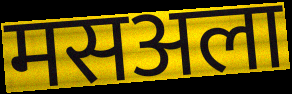
मसअला